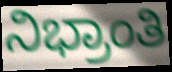
ನಿಭ್ರಾಂತಿ